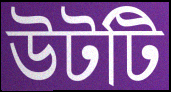
উটটি